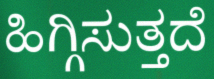
ಹಿಗ್ಗಿಸುತ್ತದೆ